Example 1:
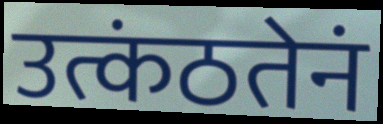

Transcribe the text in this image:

उत्कंठतेनं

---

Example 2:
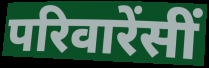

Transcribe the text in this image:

परिवारेंसीं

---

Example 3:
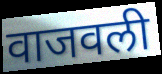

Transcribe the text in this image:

वाजवली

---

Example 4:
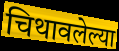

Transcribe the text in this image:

चिथावलेल्या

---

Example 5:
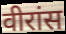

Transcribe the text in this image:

वीरांस